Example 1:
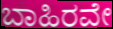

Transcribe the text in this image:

ಬಾಹಿರವೇ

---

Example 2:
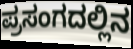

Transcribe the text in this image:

ಪ್ರಸಂಗದಲ್ಲಿನ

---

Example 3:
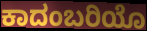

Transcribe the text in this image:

ಕಾದಂಬರಿಯೊ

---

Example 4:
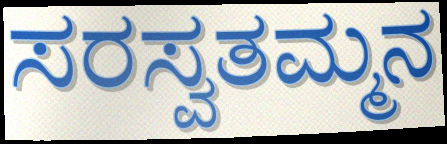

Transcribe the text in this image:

ಸರಸ್ವತಮ್ಮನ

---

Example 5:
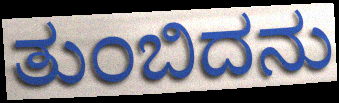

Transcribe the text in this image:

ತುಂಬಿದನು